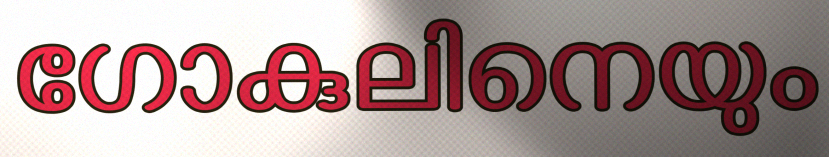
ഗോകുലിനെയും